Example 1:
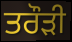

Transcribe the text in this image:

ਤਰੌੜੀ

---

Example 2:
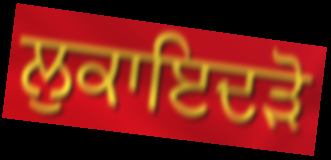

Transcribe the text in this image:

ਲੁਕਾਇਦੜੋ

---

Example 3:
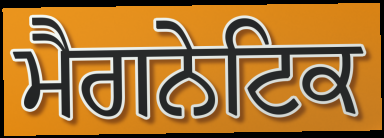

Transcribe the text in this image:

ਮੈਗਨੇਟਿਕ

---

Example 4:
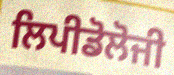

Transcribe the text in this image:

ਲਿਪੀਡੋਲੋਜੀ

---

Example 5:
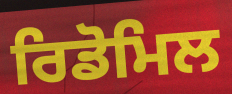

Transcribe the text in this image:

ਰਿਡੋਮਿਲ